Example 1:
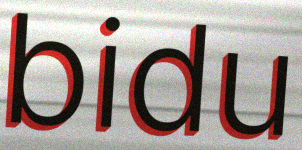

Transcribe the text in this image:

bidu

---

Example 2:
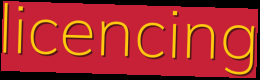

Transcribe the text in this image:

licencing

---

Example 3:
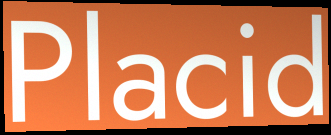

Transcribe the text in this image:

Placid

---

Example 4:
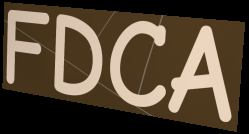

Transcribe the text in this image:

FDCA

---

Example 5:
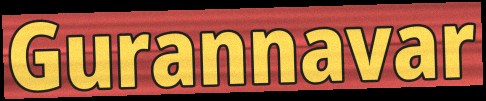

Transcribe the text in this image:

Gurannavar